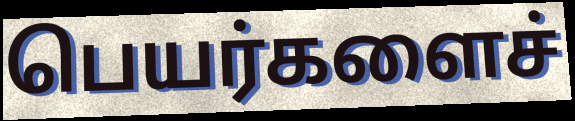
பெயர்களைச்